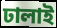
ঢালাই